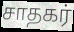
சாதகர்